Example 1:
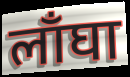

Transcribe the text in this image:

लाँघा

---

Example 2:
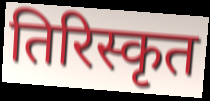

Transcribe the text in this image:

तिरिस्कृत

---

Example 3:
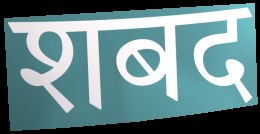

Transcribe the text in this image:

शबद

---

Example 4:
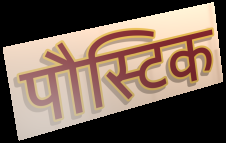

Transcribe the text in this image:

पौस्टिक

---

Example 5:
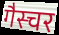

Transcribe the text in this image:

गैस्चर